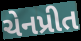
ચેનપ્રીત